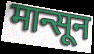
मान्सून